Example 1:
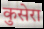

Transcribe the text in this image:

कुसेरा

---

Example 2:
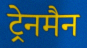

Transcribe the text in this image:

ट्रेनमैन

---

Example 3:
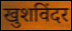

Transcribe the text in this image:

खुशविंदर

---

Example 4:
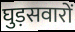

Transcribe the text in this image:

घुड़सवारों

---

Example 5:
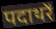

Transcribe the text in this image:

पदाथरें